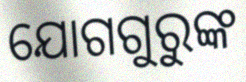
ଯୋଗଗୁରୁଙ୍କ